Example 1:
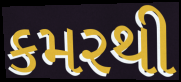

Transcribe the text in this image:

કમરથી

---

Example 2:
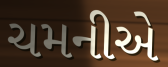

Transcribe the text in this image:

ચમનીએ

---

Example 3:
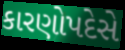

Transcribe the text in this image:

કારણોપદેસે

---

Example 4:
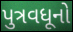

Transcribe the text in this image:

પુત્રવધૂનો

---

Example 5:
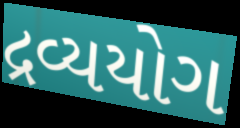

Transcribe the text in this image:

દ્રવ્યયોગ